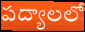
పద్యాలలో